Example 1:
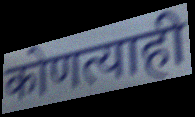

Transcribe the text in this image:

कोणत्याही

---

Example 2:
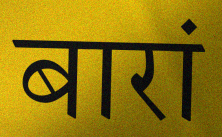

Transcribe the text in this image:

बारां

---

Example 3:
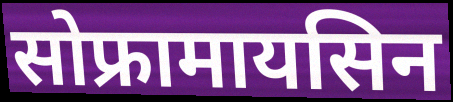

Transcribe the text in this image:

सोफ्रामायसिन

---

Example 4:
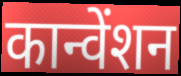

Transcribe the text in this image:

कान्वेंशन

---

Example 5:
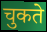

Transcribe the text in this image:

चुकते